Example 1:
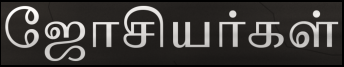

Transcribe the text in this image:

ஜோசியர்கள்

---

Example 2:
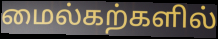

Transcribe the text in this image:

மைல்கற்களில்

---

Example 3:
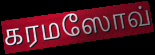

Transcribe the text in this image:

கரமஸோவ்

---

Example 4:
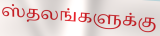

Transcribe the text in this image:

ஸ்தலங்களுக்கு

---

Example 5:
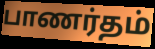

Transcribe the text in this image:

பாணர்தம்